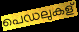
പെഡലുകള്